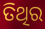
ତିଥିର